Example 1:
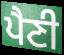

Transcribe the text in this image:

ਪੈਣੀ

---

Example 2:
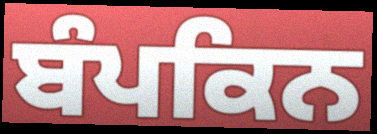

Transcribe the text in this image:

ਬੰਪਕਿਨ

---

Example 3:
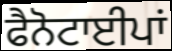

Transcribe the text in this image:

ਫੈਨੋਟਾਈਪਾਂ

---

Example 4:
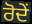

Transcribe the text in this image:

ਰੋਦੇਂ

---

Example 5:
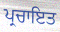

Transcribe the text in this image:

ਪ੍ਰਚਾਇਤ